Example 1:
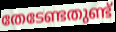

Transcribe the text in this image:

തേടേണ്ടതുണ്ട്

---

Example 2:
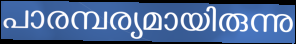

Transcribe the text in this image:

പാരമ്പര്യമായിരുന്നു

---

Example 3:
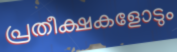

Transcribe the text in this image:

പ്രതീക്ഷകളോടും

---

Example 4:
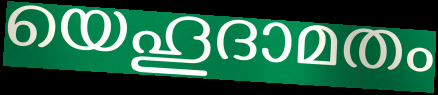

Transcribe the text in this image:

യെഹൂദാമതം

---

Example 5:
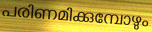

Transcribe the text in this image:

പരിണമിക്കുമ്പോഴും